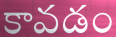
కావడం